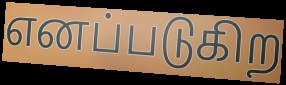
எனப்படுகிற